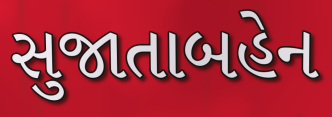
સુજાતાબહેન